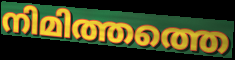
നിമിത്തത്തെ